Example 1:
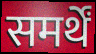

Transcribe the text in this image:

समर्थें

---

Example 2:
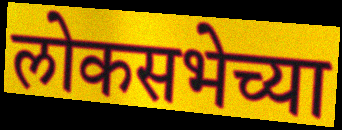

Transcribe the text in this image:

लोकसभेच्या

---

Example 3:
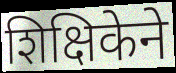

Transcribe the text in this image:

शिक्षिकेने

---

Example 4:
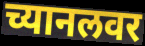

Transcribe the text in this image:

च्यानलवर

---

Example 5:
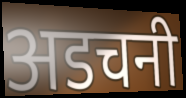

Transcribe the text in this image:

अडचनी